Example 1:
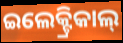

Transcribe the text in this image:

ଇଲେକ୍ଟ୍ରିକାଲ୍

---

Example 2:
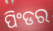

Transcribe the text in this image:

ପିଂଡର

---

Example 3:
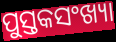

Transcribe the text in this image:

ପୁସ୍ତକସଂଖ୍ୟା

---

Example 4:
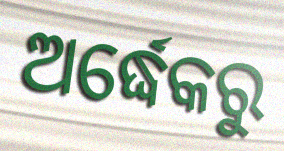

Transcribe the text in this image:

ଅର୍ଦ୍ଧେକରୁ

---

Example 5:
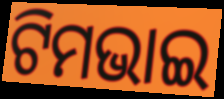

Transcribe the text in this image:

ଟିମଭାଇ